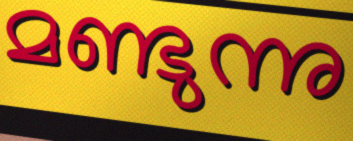
മണ്ടുന്നു